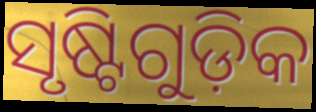
ସୃଷ୍ଟିଗୁଡ଼ିକ